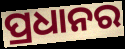
ପ୍ରଧାନର